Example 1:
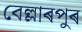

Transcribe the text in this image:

বেল্লাৰপুৰ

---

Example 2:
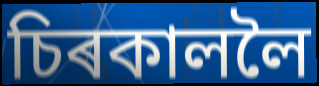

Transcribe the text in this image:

চিৰকাললৈ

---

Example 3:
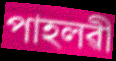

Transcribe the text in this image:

পাহলৱী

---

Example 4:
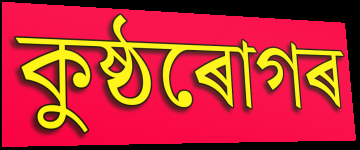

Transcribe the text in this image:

কুষ্ঠৰোগৰ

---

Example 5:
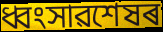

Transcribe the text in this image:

ধ্বংসাৱশেষৰ